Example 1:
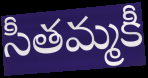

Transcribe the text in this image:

సీతమ్మకీ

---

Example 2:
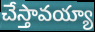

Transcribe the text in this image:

చేస్తావయ్యా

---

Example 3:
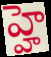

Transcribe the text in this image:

హ్హె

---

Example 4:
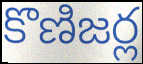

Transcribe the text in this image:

కొణిజర్ల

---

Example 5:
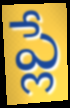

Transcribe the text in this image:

ప్లే